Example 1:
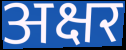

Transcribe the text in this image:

अक्षर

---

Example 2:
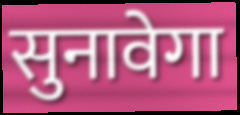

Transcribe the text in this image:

सुनावेगा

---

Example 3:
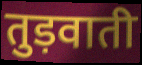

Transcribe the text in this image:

तुड़वाती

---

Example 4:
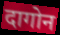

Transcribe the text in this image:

दागोन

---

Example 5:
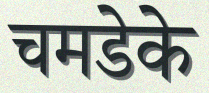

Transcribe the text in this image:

चमडेके